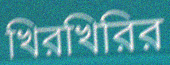
খিরখিরির